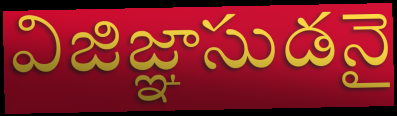
విజిజ్ఞాసుడనై